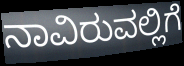
ನಾವಿರುವಲ್ಲಿಗೆ